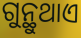
ଗୁନ୍ଥୁଥାଏ